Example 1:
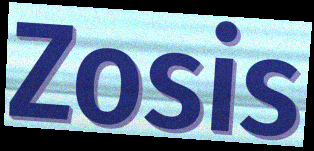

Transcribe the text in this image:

Zosis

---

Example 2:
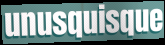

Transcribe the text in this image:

unusquisque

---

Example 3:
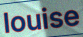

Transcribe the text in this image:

louise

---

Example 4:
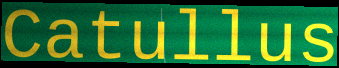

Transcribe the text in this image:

Catullus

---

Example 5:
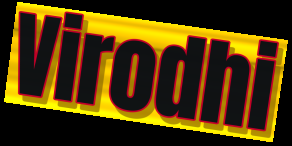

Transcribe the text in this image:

Virodhi